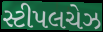
સ્ટીપલચેઝ